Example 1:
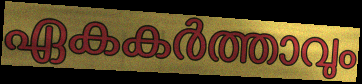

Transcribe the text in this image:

ഏകകർത്താവും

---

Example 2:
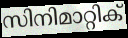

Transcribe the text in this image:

സിനിമാറ്റിക്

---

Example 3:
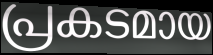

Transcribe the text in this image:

പ്രകടമായ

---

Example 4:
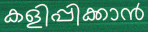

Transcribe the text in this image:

കളിപ്പിക്കാൻ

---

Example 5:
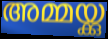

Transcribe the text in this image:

അമ്മയ്ക്കു